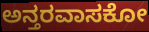
ಅನ್ತರವಾಸಕೋ